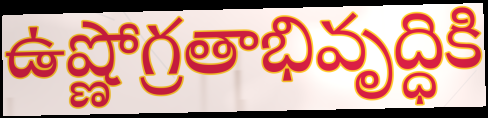
ఉష్ణోగ్రతాభివృద్ధికి